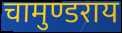
चामुण्डराय